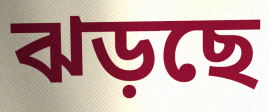
ঝড়ছে